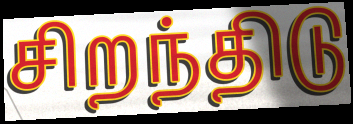
சிறந்திடு